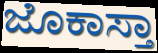
ಜೊಕಾಸ್ತಾ